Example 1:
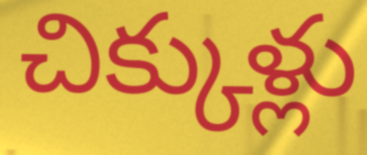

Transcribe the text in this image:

చిక్కుళ్లు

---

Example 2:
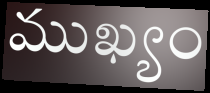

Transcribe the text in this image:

ముఖ్యం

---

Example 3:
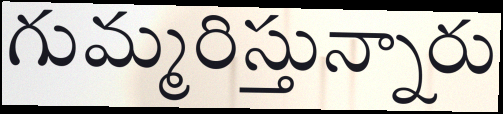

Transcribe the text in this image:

గుమ్మరిస్తున్నారు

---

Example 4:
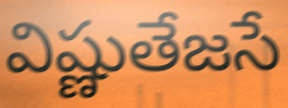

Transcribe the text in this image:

విష్ణుతేజసే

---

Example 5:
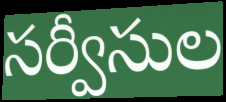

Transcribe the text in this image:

సర్వీసుల